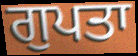
ਗੁਪਤਾ